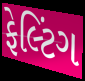
ફેલ્ટિંગ